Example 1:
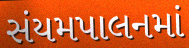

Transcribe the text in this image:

સંયમપાલનમાં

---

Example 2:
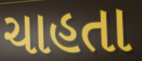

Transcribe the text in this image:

ચાહતા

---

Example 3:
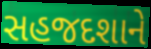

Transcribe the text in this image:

સહજદશાને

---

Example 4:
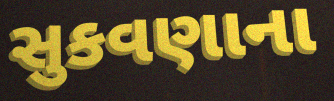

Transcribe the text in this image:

સુકવણાના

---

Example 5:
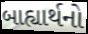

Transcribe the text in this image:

બાહ્યાર્થનો